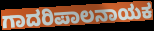
ಗಾದರಿಪಾಲನಾಯಕ